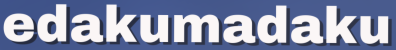
edakumadaku